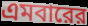
এমবারের